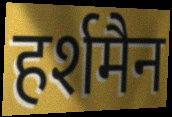
हर्शमैन